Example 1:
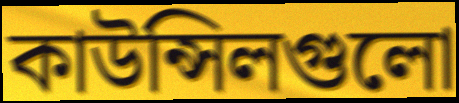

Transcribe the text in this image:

কাউন্সিলগুলো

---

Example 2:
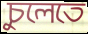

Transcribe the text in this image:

চুলেতে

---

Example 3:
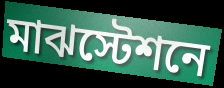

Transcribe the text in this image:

মাঝস্টেশনে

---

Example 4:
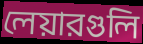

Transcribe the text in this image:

লেয়ারগুলি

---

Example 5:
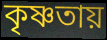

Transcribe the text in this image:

কৃষ্ণতায়